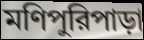
মণিপুরিপাড়া